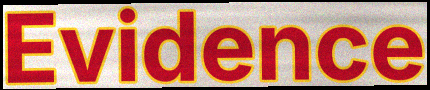
Evidence